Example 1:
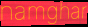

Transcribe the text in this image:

namghar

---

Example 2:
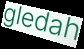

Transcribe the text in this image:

gledah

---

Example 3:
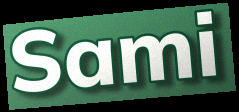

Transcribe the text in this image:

Sami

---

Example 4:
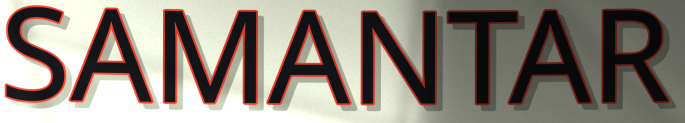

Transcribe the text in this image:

SAMANTAR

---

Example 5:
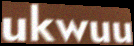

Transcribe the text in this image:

ukwuu